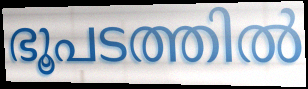
ഭൂപടത്തിൽ